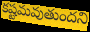
కష్టమవుతుందని